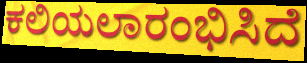
ಕಲಿಯಲಾರಂಭಿಸಿದೆ